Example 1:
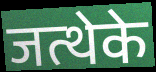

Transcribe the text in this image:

जत्थेके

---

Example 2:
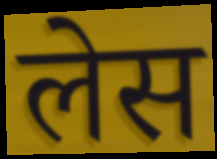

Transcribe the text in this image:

लेस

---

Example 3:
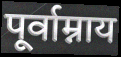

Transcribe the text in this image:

पूर्वाम्नाय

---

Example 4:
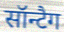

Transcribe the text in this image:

सॉन्टैग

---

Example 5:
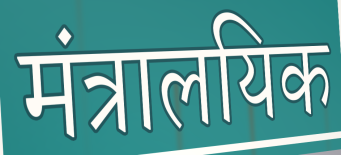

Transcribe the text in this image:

मंत्रालयिक